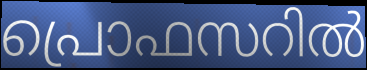
പ്രൊഫസറിൽ